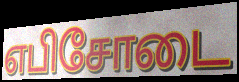
எபிசோடை